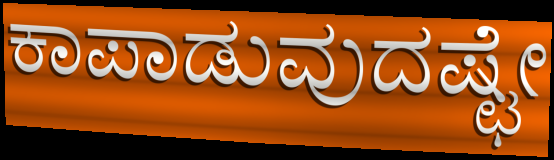
ಕಾಪಾಡುವುದಷ್ಟೇ